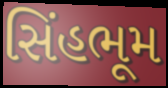
સિંહભૂમ